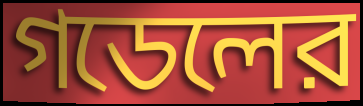
গডেলের